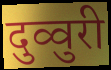
दुव्वुरी